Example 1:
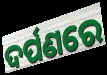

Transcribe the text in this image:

ଦର୍ପଣରେ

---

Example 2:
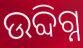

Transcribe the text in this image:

ଉବ୍ଦିଗ୍ନ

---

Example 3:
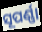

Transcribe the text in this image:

ସୂପର୍ଣ୍ଣା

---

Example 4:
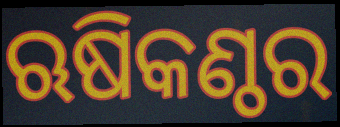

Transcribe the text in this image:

ଋଷିକଣ୍ଠର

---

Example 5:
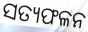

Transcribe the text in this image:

ସତ୍ୟଫଳନ